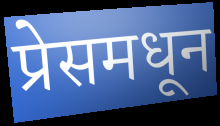
प्रेसमधून